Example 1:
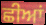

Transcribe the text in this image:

ਛੀਆਂ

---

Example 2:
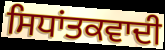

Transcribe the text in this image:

ਸਿਧਾਂਤਕਵਾਦੀ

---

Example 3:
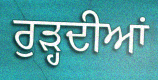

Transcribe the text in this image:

ਰੁੜ੍ਹਦੀਆਂ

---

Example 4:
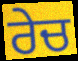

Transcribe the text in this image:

ਰੇਚ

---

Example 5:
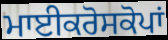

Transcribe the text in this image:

ਮਾਈਕਰੋਸਕੋਪਾਂ